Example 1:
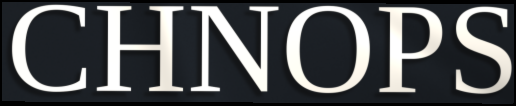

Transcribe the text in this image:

CHNOPS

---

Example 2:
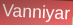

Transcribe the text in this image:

Vanniyar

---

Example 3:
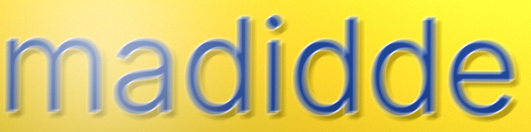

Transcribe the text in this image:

madidde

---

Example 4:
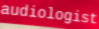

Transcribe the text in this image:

audiologist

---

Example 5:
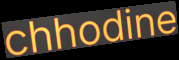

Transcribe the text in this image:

chhodine